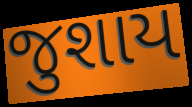
જુશાય